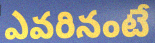
ఎవరినంటే